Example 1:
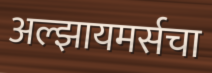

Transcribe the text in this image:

अल्झायमर्सचा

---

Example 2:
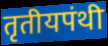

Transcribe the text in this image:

तृतीयपंथी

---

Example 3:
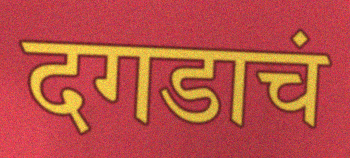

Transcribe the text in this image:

दगडाचं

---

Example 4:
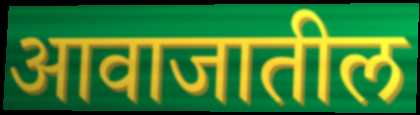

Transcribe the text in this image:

आवाजातील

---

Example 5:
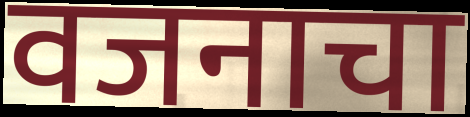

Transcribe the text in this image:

वजनाचा